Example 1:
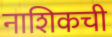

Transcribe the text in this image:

नाशिकची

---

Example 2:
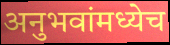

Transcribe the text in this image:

अनुभवांमध्येच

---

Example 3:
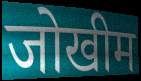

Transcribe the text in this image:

जोखीम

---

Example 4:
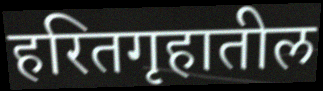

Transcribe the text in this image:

हरितगृहातील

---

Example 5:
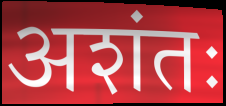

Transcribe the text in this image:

अशंतः